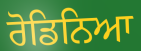
ਰੋਡਿਨਿਆ